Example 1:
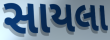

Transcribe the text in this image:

સાયલા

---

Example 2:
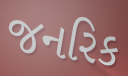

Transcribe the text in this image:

જનરિક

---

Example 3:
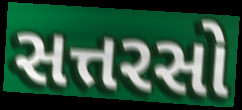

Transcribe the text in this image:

સત્તરસો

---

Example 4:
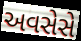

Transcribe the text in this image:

અવસેસે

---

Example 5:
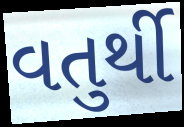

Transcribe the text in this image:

વતુર્થી